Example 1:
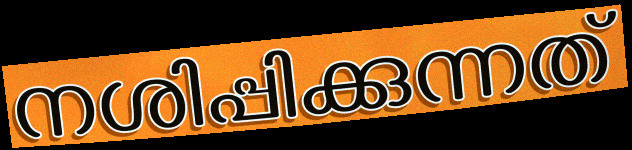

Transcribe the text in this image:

നശിപ്പിക്കുന്നത്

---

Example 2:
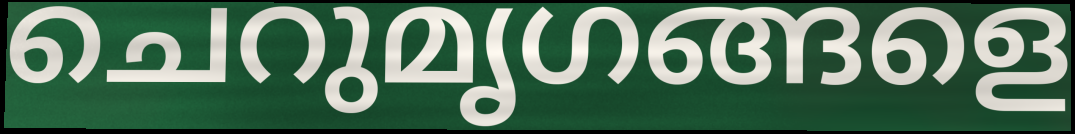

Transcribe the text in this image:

ചെറുമൃഗങ്ങളെ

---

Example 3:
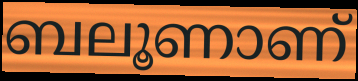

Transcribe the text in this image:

ബലൂണാണ്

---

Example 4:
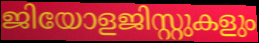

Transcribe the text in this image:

ജിയോളജിസ്റ്റുകളും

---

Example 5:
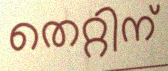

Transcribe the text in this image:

തെറ്റിന്